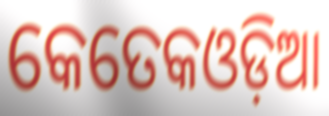
କେତେକଓଡ଼ିଆ